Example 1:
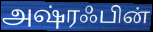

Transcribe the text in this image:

அஷ்ரஃபின்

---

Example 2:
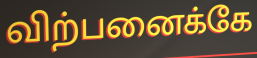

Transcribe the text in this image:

விற்பனைக்கே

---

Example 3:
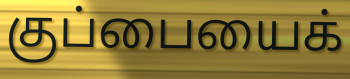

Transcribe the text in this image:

குப்பையைக்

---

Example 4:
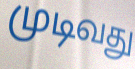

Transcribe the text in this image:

முடிவது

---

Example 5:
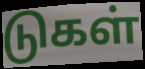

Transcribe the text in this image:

டுகள்